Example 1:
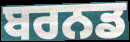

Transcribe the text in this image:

ਬਰਨਡ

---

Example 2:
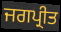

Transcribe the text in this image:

ਜਗਪ੍ਰੀਤ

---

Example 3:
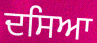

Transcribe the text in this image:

ਦਸਿਆ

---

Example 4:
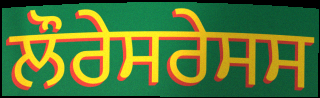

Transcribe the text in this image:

ਲੌਰੇਸਰੇਸਸ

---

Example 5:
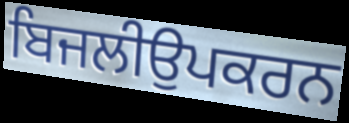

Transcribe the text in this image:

ਬਿਜਲੀਉਪਕਰਨ